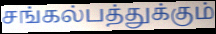
சங்கல்பத்துக்கும்